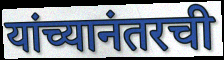
यांच्यानंतरची